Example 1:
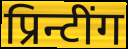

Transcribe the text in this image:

प्रिन्टींग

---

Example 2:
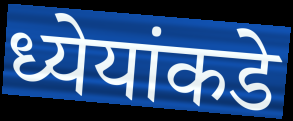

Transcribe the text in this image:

ध्येयांकडे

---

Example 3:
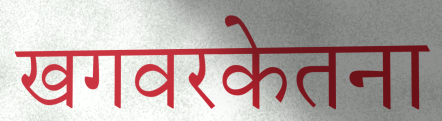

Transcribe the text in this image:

खगवरकेतना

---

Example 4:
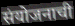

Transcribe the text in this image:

संयोजनाची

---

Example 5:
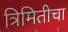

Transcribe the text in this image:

त्रिमितीचा